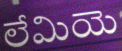
లేమియె